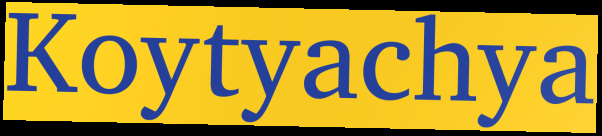
Koytyachya